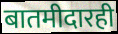
बातमीदारही